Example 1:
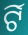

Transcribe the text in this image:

ର୍ଟି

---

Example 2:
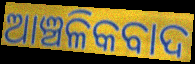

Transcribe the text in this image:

ଆଞ୍ଚଳିକବାଦ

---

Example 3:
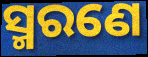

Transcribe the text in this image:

ସ୍ମରଣେ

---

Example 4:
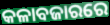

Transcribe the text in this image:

କଳାବଜାରରେ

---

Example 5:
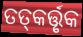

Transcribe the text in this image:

ତତ୍‌କର୍ତ୍ତୃକ